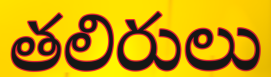
తలిరులు